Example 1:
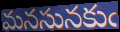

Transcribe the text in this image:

మనసునకుఁ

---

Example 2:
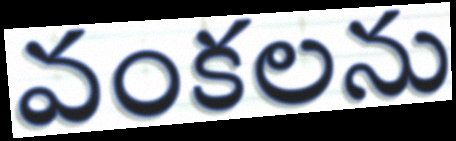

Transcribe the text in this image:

వంకలను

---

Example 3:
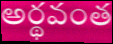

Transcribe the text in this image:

అర్థవంత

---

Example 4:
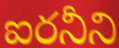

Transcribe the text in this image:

ఐరనీని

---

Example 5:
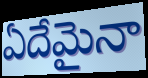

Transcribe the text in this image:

ఏదేమైనా